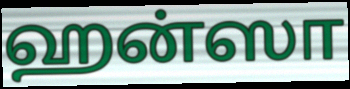
ஹன்ஸா